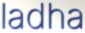
ladha